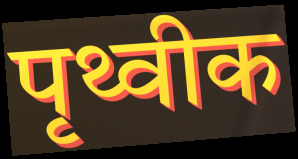
पृथ्वीक